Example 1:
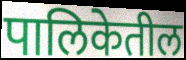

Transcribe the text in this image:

पालिकेतील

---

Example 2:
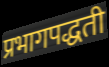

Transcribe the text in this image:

प्रभागपद्धती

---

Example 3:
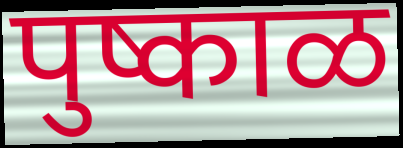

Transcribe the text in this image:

पुष्काळ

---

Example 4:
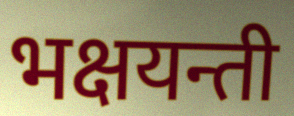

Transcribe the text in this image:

भक्षयन्ती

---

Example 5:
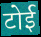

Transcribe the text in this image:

टोई